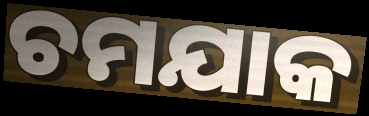
ଚମଯାକ